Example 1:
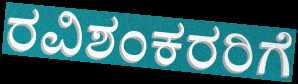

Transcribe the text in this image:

ರವಿಶಂಕರರಿಗೆ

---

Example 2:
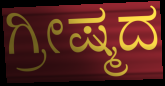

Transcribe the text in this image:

ಗ್ರೀಷ್ಮದ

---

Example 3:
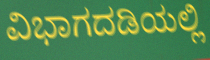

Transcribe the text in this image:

ವಿಭಾಗದಡಿಯಲ್ಲಿ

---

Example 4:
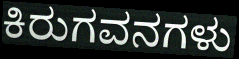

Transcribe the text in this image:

ಕಿರುಗವನಗಳು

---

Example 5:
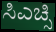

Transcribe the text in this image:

ಸಿಎಚ್ಸಿ